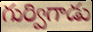
గుర్విగాడు